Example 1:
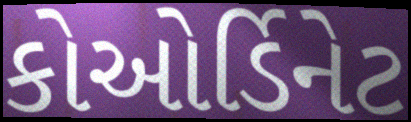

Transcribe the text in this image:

કોઓર્ડિનેટ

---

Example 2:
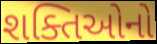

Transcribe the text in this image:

શક્તિઓનો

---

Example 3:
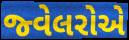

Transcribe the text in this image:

જ્વેલરોએ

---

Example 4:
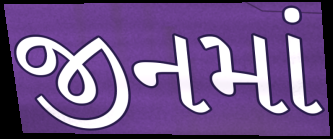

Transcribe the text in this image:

જીનમાં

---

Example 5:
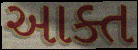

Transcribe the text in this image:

આક્ત